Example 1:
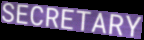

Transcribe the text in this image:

SECRETARY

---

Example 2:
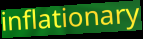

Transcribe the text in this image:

inflationary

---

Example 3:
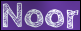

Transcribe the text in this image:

Noor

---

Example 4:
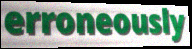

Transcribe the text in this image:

erroneously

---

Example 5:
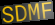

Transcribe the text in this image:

SDMF